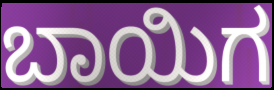
ಬಾಯಿಗ